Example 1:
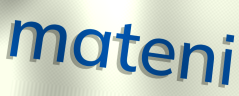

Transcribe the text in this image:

mateni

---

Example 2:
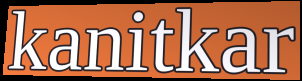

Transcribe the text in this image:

kanitkar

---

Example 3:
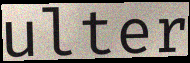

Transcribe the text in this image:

ulter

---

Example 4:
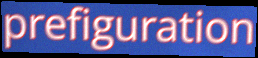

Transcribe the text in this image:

prefiguration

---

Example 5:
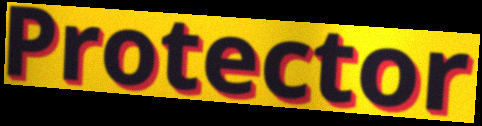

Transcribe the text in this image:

Protector